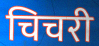
चिचरी